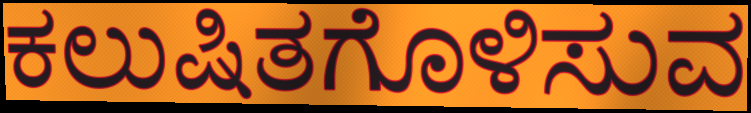
ಕಲುಷಿತಗೊಳಿಸುವ